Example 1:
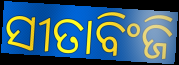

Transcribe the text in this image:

ସୀତାବିଂଜି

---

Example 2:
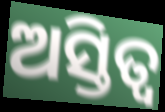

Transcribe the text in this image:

ଅସ୍ତିତ୍ଵ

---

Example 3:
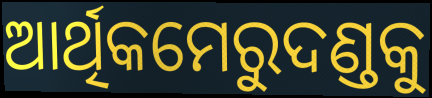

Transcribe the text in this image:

ଆର୍ଥିକମେରୁଦଣ୍ଡକୁ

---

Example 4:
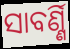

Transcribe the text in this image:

ସାବର୍ଣ୍ଣି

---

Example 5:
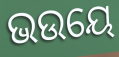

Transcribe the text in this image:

ଭଉୟେ